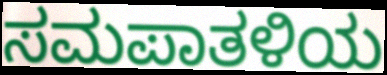
ಸಮಪಾತಳಿಯ